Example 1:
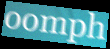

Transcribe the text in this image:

oomph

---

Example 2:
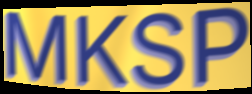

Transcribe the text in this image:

MKSP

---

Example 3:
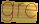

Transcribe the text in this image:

gre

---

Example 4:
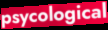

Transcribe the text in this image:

psycological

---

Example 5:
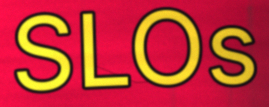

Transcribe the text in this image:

SLOs